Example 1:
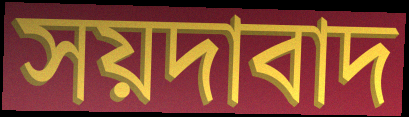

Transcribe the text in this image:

সয়দাবাদ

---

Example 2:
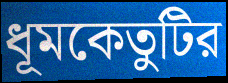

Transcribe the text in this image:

ধূমকেতুটির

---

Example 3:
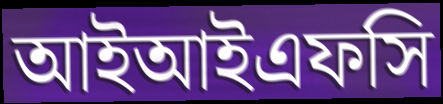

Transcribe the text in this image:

আইআইএফসি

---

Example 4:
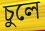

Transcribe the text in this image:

চুলে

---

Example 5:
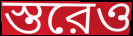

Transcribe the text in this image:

স্তরেও